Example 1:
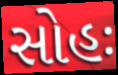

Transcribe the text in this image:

સોહઃ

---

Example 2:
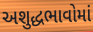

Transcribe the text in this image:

અશુદ્ધભાવોમાં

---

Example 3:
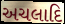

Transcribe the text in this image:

અચલાદિ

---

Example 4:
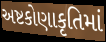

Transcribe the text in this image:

અષ્ટકોણાકૃતિમાં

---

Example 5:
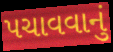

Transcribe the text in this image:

પચાવવાનું